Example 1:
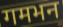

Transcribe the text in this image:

गमभन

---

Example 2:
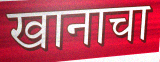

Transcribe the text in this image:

खानाचा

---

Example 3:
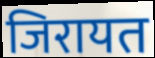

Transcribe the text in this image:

जिरायत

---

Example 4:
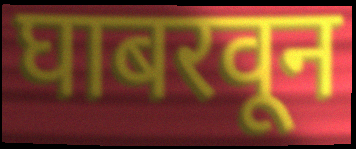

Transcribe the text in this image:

घाबरवून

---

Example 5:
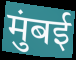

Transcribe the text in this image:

मुंबई